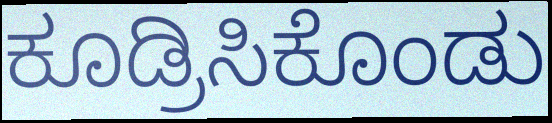
ಕೂಡ್ರಿಸಿಕೊಂಡು